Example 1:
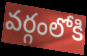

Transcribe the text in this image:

వర్గంలోకి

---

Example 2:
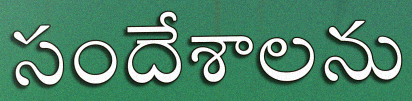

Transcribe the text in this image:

సందేశాలను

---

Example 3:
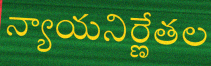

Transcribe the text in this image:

న్యాయనిర్ణేతల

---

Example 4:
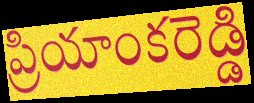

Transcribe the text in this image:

ప్రియాంకరెడ్డి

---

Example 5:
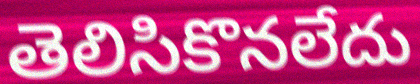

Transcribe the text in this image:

తెలిసికొనలేదు